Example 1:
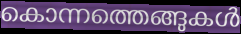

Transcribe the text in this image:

കൊന്നത്തെങ്ങുകൾ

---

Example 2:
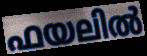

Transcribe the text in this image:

ഫയലിൽ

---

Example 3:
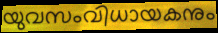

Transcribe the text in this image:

യുവസംവിധായകനും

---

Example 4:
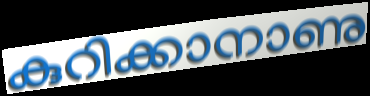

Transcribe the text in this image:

കുറിക്കാനാണു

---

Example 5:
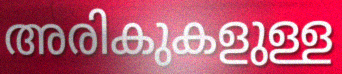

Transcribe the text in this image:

അരികുകളുള്ള